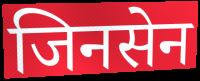
जिनसेन